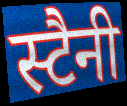
स्टैनी